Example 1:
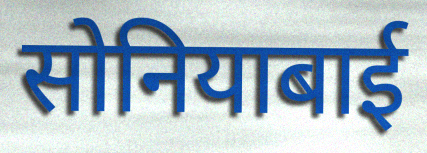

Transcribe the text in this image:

सोनियाबाई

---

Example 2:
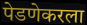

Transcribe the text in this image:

पेडणेकरला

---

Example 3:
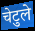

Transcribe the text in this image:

चेटुले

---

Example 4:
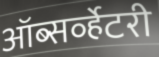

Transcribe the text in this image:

ऑब्सर्व्हेटरी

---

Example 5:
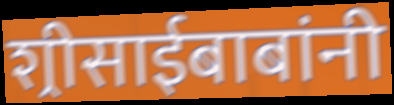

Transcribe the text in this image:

श्रीसाईबाबांनी